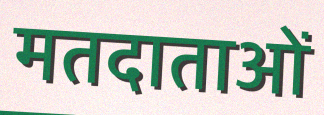
मतदाताओें